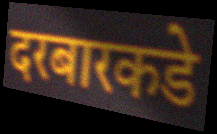
दरबारकडे